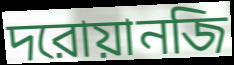
দরোয়ানজি